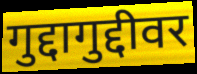
गुद्दागुद्दीवर